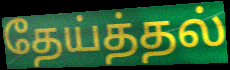
தேய்த்தல்